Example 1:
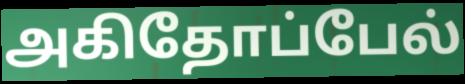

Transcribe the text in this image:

அகிதோப்பேல்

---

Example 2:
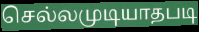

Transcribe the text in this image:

செல்லமுடியாதபடி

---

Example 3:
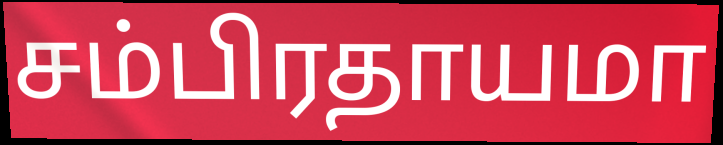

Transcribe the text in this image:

சம்பிரதாயமா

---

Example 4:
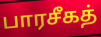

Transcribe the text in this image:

பாரசீகத்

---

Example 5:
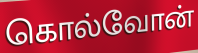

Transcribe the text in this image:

கொல்வோன்